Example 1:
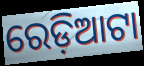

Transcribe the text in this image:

ରେଡ଼ିଆଟା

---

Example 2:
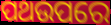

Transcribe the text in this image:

ପଥଉପରେ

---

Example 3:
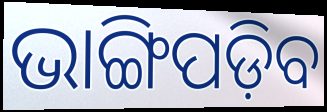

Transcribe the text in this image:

ଭାଙ୍ଗିପଡ଼ିବ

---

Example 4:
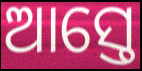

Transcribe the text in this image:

ଆସ୍ତେ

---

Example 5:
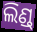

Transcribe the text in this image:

ଲିଣ୍ଡ୍